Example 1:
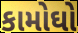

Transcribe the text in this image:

કામોઘો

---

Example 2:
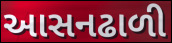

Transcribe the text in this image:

આસનઢાળી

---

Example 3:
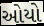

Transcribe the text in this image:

ઓયો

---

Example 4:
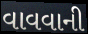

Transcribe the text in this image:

વાવવાની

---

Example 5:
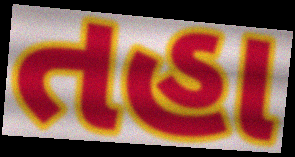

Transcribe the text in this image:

તહા